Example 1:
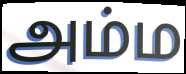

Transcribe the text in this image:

அம்ம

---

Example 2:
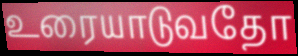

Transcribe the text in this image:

உரையாடுவதோ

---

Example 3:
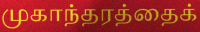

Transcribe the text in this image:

முகாந்தரத்தைக்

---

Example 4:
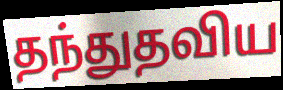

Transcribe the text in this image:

தந்துதவிய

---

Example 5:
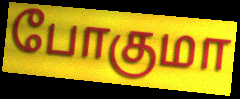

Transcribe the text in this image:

போகுமா